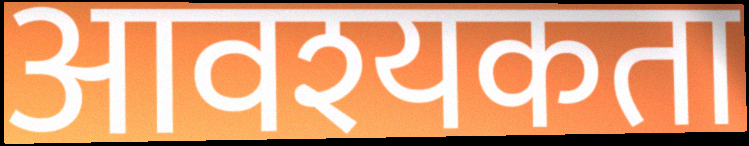
आवश्यकता